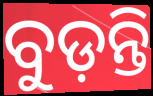
ବୁଡ଼ନ୍ତି